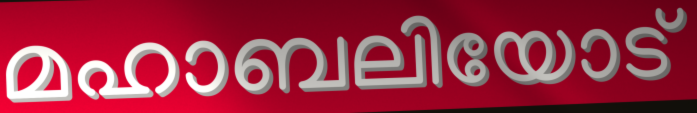
മഹാബലിയോട്